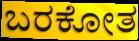
ಬರಕೋತ